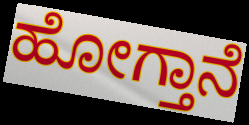
ಹೋಗ್ತಾನೆ